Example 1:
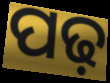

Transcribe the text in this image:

ପଢ଼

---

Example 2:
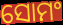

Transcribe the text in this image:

ସୋମଂ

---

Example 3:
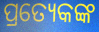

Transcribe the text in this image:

ପ୍ରତ୍ଯେକଙ୍କ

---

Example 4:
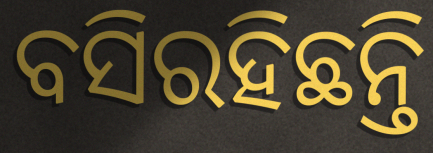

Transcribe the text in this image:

ବସିରହିଛନ୍ତି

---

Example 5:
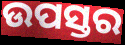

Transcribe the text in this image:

ଉପସ୍ତର